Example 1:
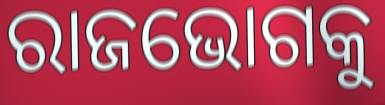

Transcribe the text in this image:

ରାଜଭୋଗକୁ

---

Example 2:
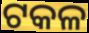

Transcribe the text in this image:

ଟକଳ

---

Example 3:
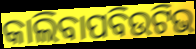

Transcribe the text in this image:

କାଲିବାପବିଉଟିଭ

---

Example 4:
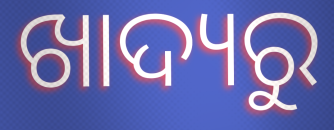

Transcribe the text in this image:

ଖାଦ୍ୟରୁ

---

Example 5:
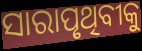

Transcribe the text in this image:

ସାରାପୃଥିବୀକୁ